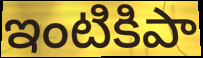
ఇంటికిపా